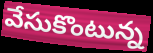
వేసుకొంటున్న